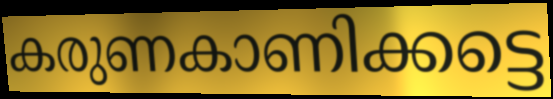
കരുണകാണിക്കട്ടെ